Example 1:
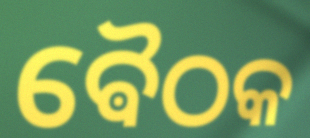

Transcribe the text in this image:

ଵୈଠକ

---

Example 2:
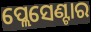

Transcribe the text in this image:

ପ୍ଲେସେଣ୍ଟାର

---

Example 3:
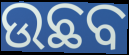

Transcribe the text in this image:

ଉଛବ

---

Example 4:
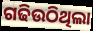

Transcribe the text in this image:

ଗଢିଉଠିଥିଲା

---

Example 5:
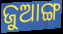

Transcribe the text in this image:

ଜୁଆଙ୍ଗ